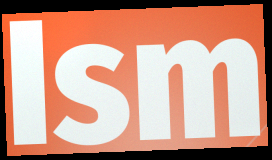
Ism